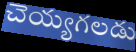
చెయ్యగలడు